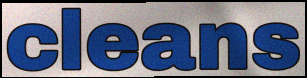
cleans